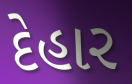
દેહાર